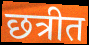
छत्रीत